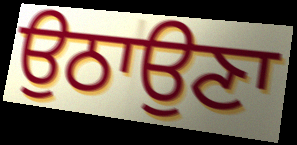
ਉਠਾਉਣਾ